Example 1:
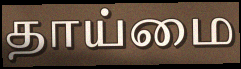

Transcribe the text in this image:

தாய்மை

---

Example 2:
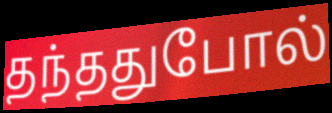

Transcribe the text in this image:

தந்ததுபோல்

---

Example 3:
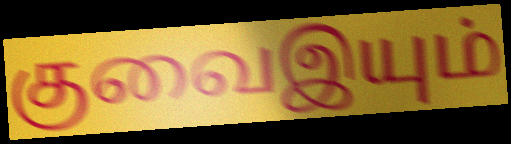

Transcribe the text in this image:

குவைஇயும்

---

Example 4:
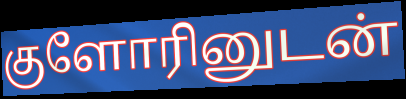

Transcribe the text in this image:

குளோரினுடன்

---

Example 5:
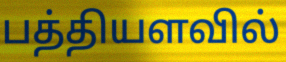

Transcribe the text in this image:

பத்தியளவில்